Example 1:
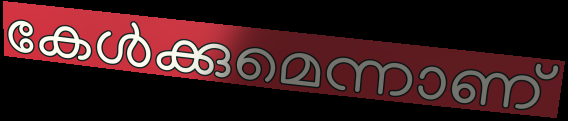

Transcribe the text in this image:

കേൾക്കുമെന്നാണ്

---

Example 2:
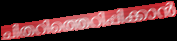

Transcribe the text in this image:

ചിതറിത്തെറിപ്പിക്കാൻ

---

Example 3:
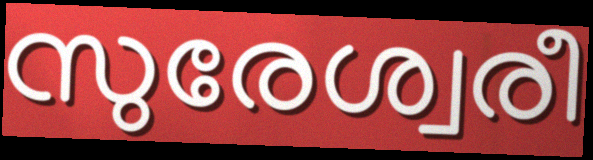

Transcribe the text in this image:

സുരേശ്വരീ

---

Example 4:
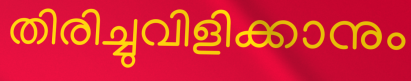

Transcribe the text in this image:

തിരിച്ചുവിളിക്കാനും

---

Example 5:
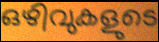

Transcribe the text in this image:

ഒഴിവുകളുടെ